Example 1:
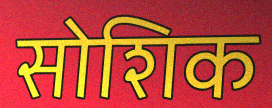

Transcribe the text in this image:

सोशिक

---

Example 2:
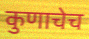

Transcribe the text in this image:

कुणाचेच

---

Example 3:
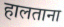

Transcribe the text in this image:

हालताना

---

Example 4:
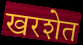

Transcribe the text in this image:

खरशेत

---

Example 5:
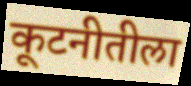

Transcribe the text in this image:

कूटनीतीला